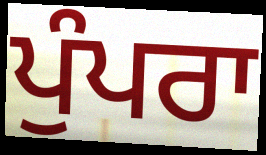
ਪੁੰਪਰਾ